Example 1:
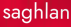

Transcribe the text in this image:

saghlan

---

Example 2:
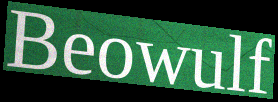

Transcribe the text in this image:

Beowulf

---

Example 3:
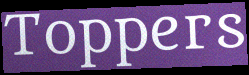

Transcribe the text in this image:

Toppers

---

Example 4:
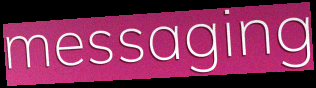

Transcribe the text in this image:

messaging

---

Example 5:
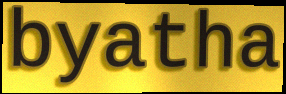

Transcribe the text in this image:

byatha